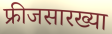
फ्रीजसारख्या